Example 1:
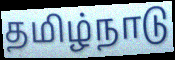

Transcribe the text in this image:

தமிழ்நாடு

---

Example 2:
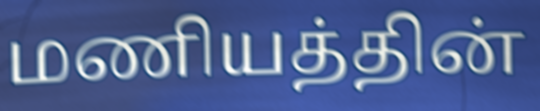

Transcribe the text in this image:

மணியத்தின்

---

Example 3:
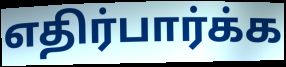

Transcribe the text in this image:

எதிர்பார்க்க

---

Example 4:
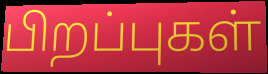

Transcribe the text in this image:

பிறப்புகள்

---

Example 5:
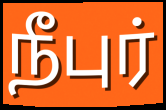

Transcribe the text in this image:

நீபுர்